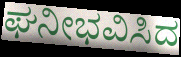
ಘನೀಭವಿಸಿದ